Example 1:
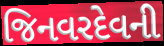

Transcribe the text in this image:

જિનવરદેવની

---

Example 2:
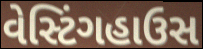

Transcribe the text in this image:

વેસ્ટિંગહાઉસ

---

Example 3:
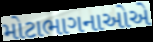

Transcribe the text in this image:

મોટાભાગનાઓએ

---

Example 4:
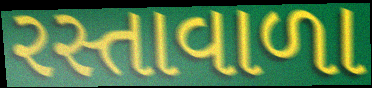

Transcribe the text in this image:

રસ્તાવાળા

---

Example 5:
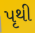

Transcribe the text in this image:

પૃથી